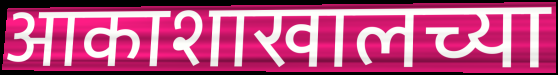
आकाशाखालच्या